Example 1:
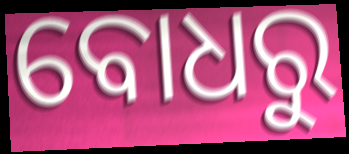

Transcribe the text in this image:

ବୋଧରୁ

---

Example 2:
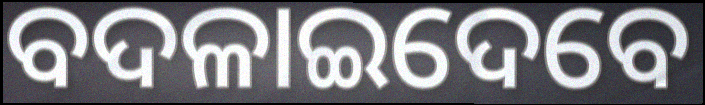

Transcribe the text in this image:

ବଦଳାଇଦେବେ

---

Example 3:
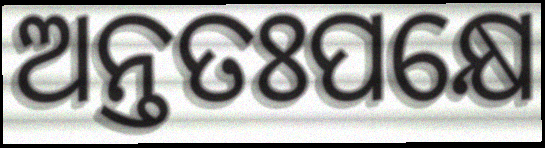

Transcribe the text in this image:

ଅନ୍ତତଃପକ୍ଷେ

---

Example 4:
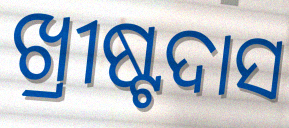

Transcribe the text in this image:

ଖ୍ରୀଷ୍ଟଦାସ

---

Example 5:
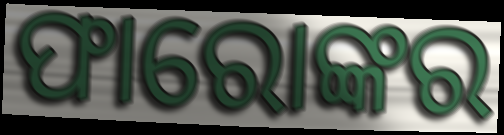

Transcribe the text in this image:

ଫାରୋଙ୍କର